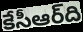
కేసీఆర్‌ది